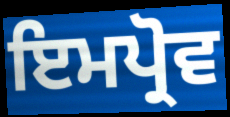
ਇਮਪ੍ਰੋਵ